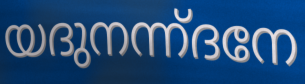
യദുനന്ന്ദനേ